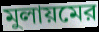
মুলায়মের